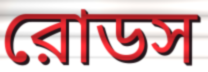
রোডস